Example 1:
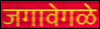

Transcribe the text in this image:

जगावेगळे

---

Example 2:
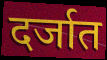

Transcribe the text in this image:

दर्जात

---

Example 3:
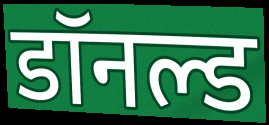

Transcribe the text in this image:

डॉनल्ड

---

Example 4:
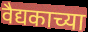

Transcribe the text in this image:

वैद्यकाच्या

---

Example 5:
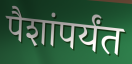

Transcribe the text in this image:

पैशांपर्यंत